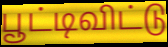
பூட்டிவிட்டு